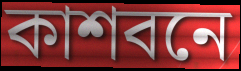
কাশবনে